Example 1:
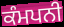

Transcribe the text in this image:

ਕੰਮਪਨੀ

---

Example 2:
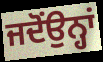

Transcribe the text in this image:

ਜਦੋਂਉਨ੍ਹਾਂ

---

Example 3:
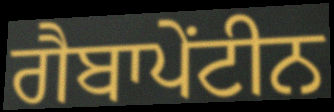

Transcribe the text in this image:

ਗੈਬਾਪੇਂਟੀਨ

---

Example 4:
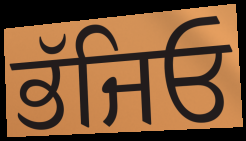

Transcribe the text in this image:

ਭੱਜਿਓ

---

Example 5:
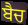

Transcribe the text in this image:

ਬੈਚ